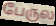
பேருல